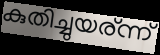
കുതിച്ചുയര്ന്ന്